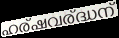
ഹര്ഷവര്ദ്ധന്